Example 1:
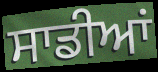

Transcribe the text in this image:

ਸਾਡੀਆਂ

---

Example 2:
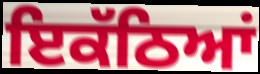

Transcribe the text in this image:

ਇਕੱਠਿਆਂ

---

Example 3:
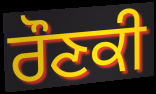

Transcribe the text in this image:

ਰੌਣਕੀ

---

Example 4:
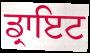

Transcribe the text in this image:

ਡ੍ਰਾਇਟ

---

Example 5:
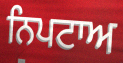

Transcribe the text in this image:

ਨਿਪਟਾਅ